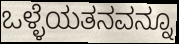
ಒಳ್ಳೆಯತನವನ್ನೂ